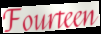
Fourteen